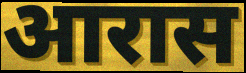
आरास